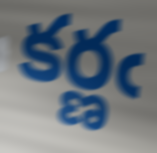
కర్ణఁ